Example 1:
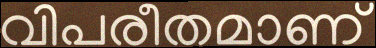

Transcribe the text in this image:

വിപരീതമാണ്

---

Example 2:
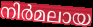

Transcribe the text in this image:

നിർമലായ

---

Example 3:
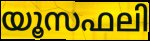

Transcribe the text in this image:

യൂസഫലി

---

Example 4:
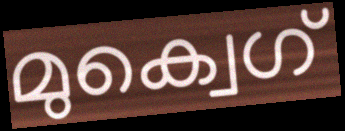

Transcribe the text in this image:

മുക്വെഗ്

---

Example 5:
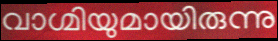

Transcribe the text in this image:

വാഗ്മിയുമായിരുന്നു